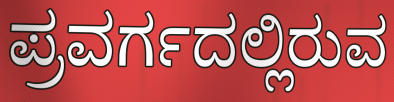
ಪ್ರವರ್ಗದಲ್ಲಿರುವ